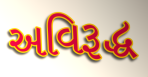
અવિરૂદ્ધ